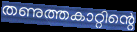
തണുത്തകാറ്റിന്റെ